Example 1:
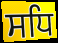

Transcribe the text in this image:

ਸਧਿ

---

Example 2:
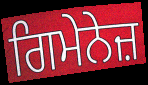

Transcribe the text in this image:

ਗਿਮੇਨੇਜ਼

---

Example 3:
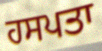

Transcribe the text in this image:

ਹਸਪਤਾ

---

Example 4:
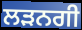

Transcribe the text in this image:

ਲੜਨਗੀ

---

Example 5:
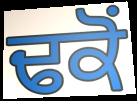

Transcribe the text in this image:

ਢਕੋਂ